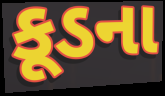
કૂડના